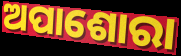
ଅପାଶୋରା